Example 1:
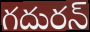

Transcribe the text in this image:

గదురన్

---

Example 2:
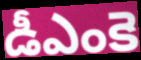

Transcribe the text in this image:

డీఎంకె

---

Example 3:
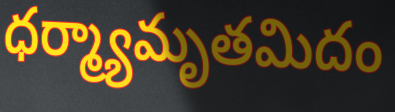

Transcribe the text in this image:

ధర్మ్యామృతమిదం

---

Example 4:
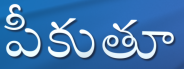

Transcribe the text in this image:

పీకుతూ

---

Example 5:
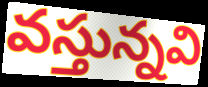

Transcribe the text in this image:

వస్తున్నవి